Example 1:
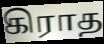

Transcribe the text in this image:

கிராத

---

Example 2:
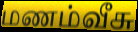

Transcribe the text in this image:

மணம்வீசு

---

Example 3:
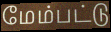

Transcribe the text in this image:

மேம்பட்டு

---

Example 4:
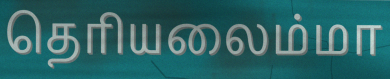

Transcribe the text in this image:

தெரியலைம்மா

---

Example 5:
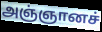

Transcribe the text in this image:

அஞ்ஞானச்